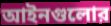
আইনগুলোর